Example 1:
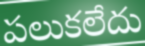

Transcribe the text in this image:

పలుకలేదు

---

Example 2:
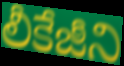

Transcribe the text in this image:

లీకేజీని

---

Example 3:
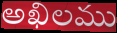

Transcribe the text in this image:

అఖిలము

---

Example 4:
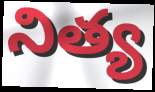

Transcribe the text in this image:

నిత్య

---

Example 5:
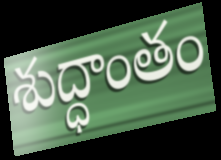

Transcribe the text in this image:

శుద్ధాంతం